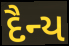
દૈન્ય